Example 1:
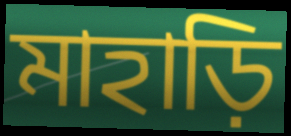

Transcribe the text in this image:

মাহাড়ি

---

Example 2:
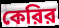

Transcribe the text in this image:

কেরির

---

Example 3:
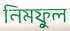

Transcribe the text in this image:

নিমফুল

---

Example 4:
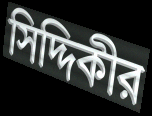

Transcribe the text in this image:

সিদ্দিকীর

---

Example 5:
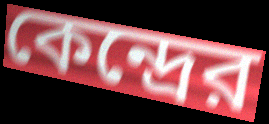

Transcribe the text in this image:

কেন্দ্রের